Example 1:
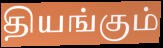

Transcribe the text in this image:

தியங்கும்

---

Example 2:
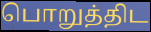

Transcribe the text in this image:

பொறுத்திட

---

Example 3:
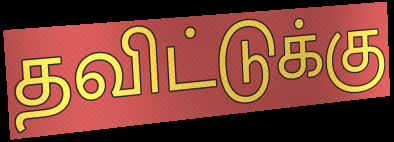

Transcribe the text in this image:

தவிட்டுக்கு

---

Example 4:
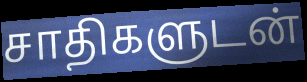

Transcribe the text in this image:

சாதிகளுடன்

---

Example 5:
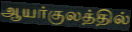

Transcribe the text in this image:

ஆயர்குலத்தில்